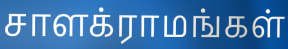
சாளக்ராமங்கள்